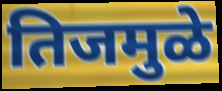
तिजमुळे